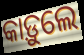
କାଡ଼ୁଲେ